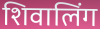
शिवालिंग